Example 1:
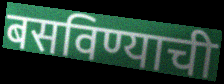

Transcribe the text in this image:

बसविण्याची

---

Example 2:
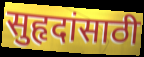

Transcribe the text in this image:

सुहृदांसाठी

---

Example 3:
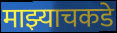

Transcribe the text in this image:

माझ्याचकडे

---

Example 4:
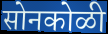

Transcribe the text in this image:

सोनकोळी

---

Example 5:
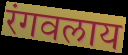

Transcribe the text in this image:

रंगवलाय